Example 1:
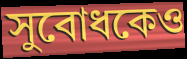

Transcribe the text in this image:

সুবোধকেও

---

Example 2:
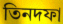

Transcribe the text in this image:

তিনদফা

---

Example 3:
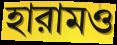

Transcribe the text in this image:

হারামও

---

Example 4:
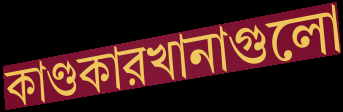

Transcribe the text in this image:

কাণ্ডকারখানাগুলো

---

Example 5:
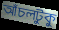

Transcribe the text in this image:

আঁচলটুকু